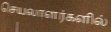
செயலாளர்களில்